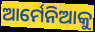
ଆର୍ମେନିଆକୁ